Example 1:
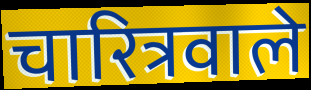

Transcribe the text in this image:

चारित्रवाले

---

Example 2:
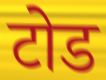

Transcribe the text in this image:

टोड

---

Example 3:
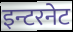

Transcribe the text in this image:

इन्‍टरनेट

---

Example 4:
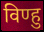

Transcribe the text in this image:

विण्हु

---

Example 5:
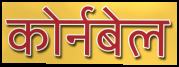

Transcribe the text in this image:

कोर्नबेल